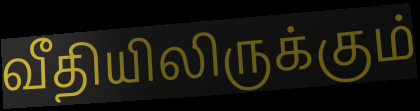
வீதியிலிருக்கும்